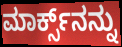
ಮಾರ್ಕ್ಸ್‌ನನ್ನು